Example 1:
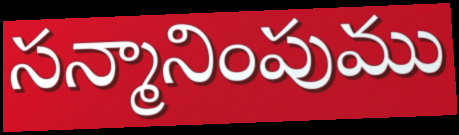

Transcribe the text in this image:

సన్మానింపుము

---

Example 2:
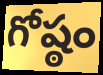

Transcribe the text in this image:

గోష్ఠం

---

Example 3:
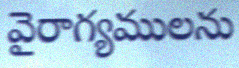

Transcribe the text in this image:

వైరాగ్యములను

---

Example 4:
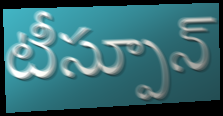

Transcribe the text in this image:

టీస్పూన్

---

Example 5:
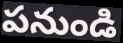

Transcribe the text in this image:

పనుండి